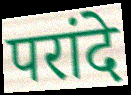
परांदे